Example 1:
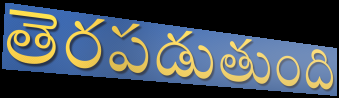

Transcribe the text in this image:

తెరపడుతుంది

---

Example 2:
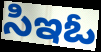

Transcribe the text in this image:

సిఇఓ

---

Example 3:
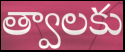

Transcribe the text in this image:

త్వాలకు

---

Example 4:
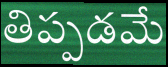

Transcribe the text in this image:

తిప్పడమే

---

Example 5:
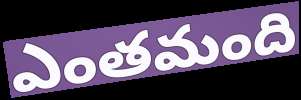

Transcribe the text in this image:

ఎంతమంది